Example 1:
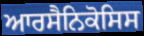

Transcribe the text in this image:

ਆਰਸੈਨਿਕੋਸਿਸ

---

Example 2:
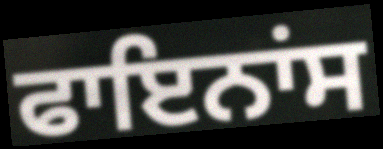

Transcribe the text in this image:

ਫਾਇਨਾਂਸ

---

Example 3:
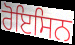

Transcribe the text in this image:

ਰੋਇਸਿਨ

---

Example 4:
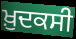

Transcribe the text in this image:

ਖ਼ੁਦਕਸੀ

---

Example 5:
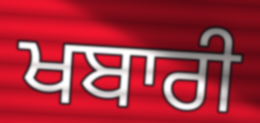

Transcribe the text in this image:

ਖਬਾਰੀ